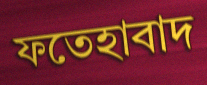
ফতেহাবাদ